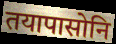
तयापासोनि